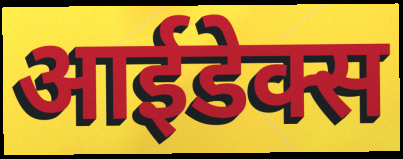
आईडेक्स